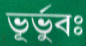
ভূর্ভুবঃ